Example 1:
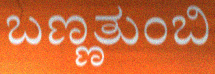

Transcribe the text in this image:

ಬಣ್ಣತುಂಬಿ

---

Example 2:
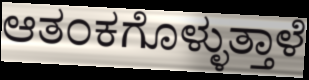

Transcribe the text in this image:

ಆತಂಕಗೊಳ್ಳುತ್ತಾಳೆ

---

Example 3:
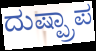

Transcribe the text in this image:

ದುಷ್ಪ್ರಾಪ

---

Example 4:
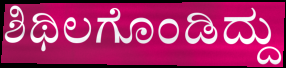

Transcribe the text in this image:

ಶಿಥಿಲಗೊಂಡಿದ್ದು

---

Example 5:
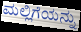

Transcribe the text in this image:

ಮಲ್ಲಿಗೆಯನ್ನು